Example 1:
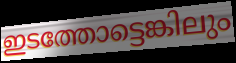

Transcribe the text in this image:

ഇടത്തോട്ടെങ്കിലും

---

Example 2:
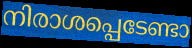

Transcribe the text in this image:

നിരാശപ്പെടേണ്ടാ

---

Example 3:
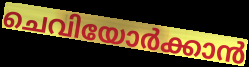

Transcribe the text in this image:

ചെവിയോർക്കാൻ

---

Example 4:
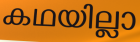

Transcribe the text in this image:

കഥയില്ലാ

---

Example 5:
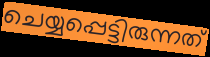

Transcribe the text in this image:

ചെയ്യപ്പെട്ടിരുന്നത്